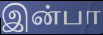
இன்பா